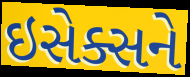
ઇસેક્સને